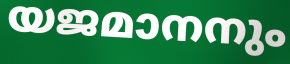
യജമാനനും